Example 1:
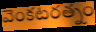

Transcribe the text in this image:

వెంకటరత్నం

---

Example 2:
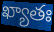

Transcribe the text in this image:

ఖ్యాతః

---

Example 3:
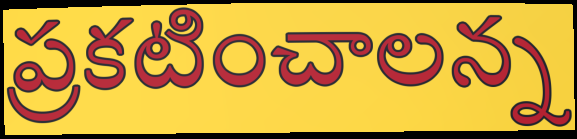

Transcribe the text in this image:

ప్రకటించాలన్న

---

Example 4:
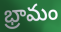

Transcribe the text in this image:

భ్రామం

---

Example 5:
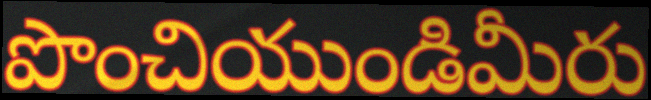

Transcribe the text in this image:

పొంచియుండిమీరు